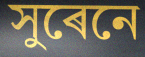
সুৰেনে